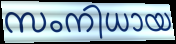
സംനിധായ